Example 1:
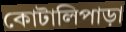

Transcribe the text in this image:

কোটালিপাড়া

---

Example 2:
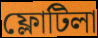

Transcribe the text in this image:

ফ্লোটিলা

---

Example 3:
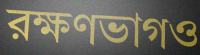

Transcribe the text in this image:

রক্ষণভাগও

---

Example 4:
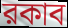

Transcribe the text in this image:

রকাব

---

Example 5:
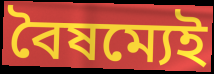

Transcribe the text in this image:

বৈষম্যেই